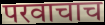
परवाचाच